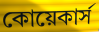
কোয়েকার্স